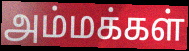
அம்மக்கள்